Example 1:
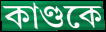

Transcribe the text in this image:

কাণ্ডকে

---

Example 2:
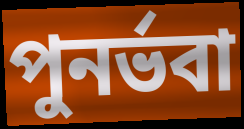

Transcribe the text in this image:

পুনর্ভবা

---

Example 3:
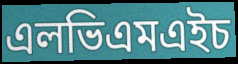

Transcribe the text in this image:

এলভিএমএইচ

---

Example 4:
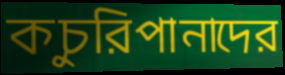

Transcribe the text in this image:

কচুরিপানাদের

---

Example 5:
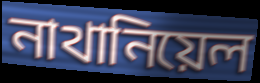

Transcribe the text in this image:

নাথানিয়েল